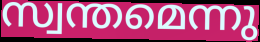
സ്വന്തമെന്നു